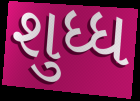
શુધ્ધ